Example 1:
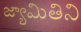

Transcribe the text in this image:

జ్యామితిని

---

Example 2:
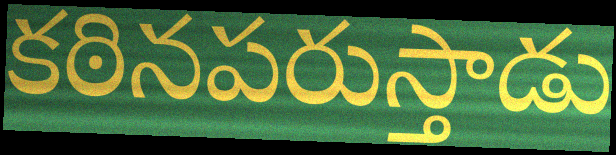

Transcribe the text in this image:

కఠినపరుస్తాడు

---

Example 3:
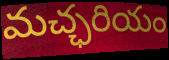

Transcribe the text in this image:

మచ్ఛరియం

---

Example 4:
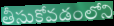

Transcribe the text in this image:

తీసుకోవడంలోని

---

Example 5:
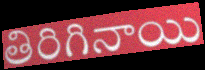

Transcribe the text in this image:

తిరిగినాయి